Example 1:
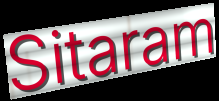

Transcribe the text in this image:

Sitaram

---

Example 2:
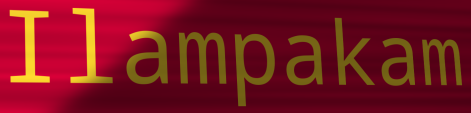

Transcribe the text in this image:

Ilampakam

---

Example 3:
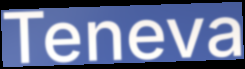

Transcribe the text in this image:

Teneva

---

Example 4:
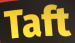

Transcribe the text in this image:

Taft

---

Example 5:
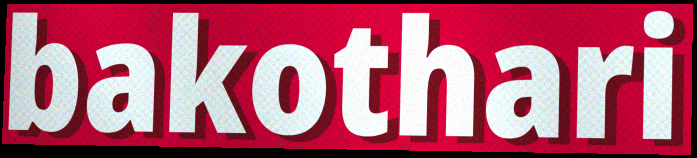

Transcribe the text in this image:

bakothari